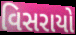
વિસરાયો